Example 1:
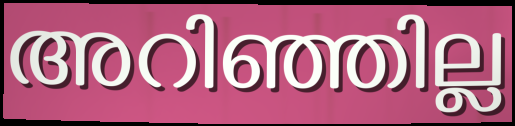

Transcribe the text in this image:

അറിഞ്ഞില്ല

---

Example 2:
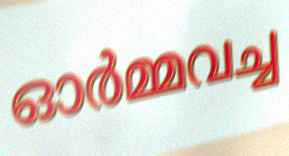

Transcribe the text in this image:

ഓർമ്മവച്ച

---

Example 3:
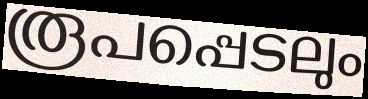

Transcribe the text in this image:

രൂപപ്പെടലും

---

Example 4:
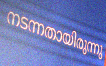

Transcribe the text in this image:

നടന്നതായിരുന്നു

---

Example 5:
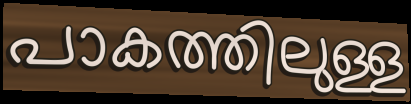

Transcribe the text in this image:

പാകത്തിലുള്ള